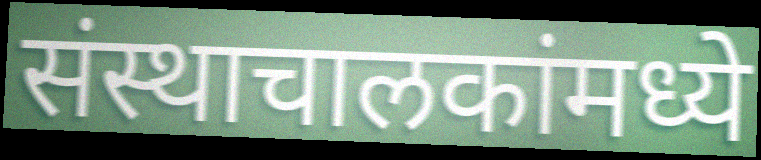
संस्थाचालकांमध्ये